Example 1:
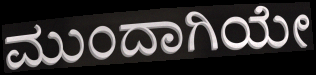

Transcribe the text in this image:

ಮುಂದಾಗಿಯೇ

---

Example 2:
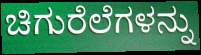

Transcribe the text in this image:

ಚಿಗುರೆಲೆಗಳನ್ನು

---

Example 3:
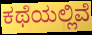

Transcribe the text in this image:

ಕಥೆಯಲ್ಲಿವೆ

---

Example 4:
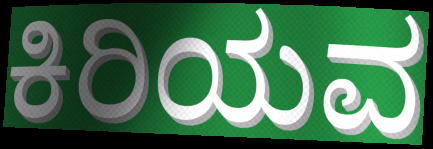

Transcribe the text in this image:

ಕಿರಿಯವ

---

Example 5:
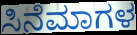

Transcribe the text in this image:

ಸಿನೆಮಾಗಳ